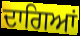
ਦਾਗਿਆਂ